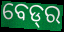
ବେଡ୍‍ର